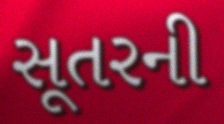
સૂતરની